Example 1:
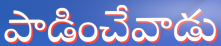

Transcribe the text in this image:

పాడించేవాడు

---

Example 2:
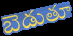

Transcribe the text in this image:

బెడుతూ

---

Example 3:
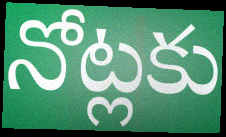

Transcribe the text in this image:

నోట్లకు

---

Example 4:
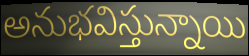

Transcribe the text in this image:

అనుభవిస్తున్నాయి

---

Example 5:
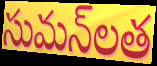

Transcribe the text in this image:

సుమన్‌లత